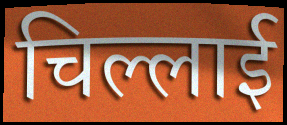
चिल्लाई